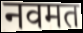
नवमत